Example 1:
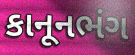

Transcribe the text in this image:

કાનૂનભંગ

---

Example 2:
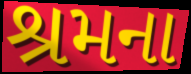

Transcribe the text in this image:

શ્રમના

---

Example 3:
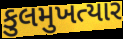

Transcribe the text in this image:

કુલમુખત્યાર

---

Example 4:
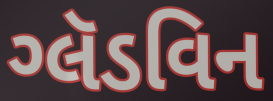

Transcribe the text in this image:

ગ્લૅડવિન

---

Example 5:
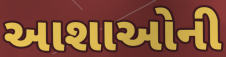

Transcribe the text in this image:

આશાઓની